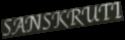
SANSKRUTI